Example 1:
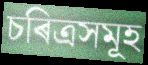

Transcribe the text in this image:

চৰিত্ৰসমূহ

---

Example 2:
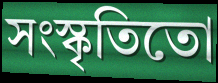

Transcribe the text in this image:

সংস্কৃতিতো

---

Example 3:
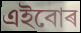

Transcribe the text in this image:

এইবোৰ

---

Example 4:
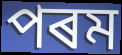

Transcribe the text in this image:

পৰম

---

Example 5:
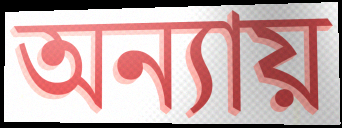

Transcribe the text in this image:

অন্যায়